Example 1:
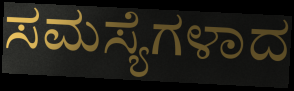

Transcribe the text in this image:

ಸಮಸ್ಯೆಗಳಾದ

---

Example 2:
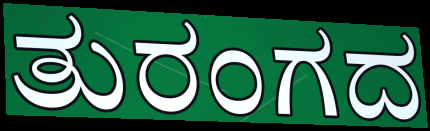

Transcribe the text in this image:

ತುರಂಗದ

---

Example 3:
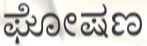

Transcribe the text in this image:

ಘೋಷಣ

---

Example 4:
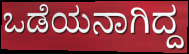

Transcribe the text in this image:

ಒಡೆಯನಾಗಿದ್ದ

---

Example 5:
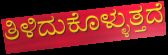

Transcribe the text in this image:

ತಿಳಿದುಕೊಳ್ಳುತ್ತದೆ